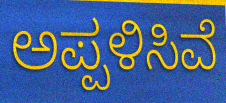
ಅಪ್ಪಳಿಸಿವೆ